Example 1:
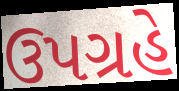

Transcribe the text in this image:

ઉપગ્રહે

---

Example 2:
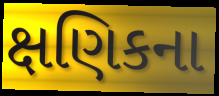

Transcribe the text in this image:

ક્ષણિકના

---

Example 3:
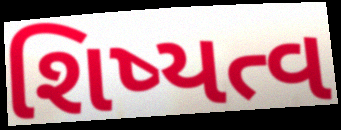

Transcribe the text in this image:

શિષ્યત્વ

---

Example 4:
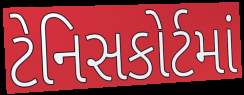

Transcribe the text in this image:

ટેનિસકોર્ટમાં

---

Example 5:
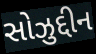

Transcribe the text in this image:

સોઝુદ્દીન